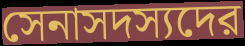
সেনাসদস্যদের